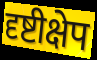
दृष्टीक्षेप